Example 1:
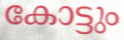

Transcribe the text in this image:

കോട്ടും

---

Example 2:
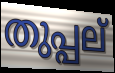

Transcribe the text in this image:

തുപ്പല്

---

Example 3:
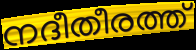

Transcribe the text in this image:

നദീതീരത്ത്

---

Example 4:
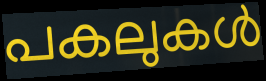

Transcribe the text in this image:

പകലുകൾ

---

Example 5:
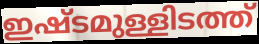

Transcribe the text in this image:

ഇഷ്ടമുള്ളിടത്ത്